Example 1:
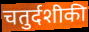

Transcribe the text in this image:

चतुर्दशीकी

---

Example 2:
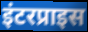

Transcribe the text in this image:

इंटरप्राइस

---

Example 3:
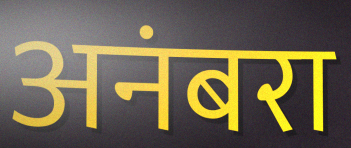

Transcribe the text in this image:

अनंबरा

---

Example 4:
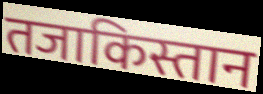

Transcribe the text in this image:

तजाकिस्‍तान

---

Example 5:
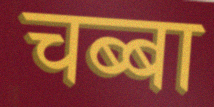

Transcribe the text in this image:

चब्बा